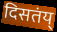
दिसतंय्